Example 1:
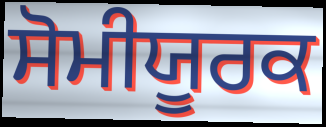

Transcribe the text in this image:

ਸੋਮੀਯੂਰਕ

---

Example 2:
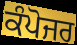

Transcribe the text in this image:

ਕੰਪੋਜਰ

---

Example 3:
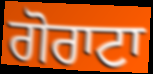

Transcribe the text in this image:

ਗੋਰਾਟਾ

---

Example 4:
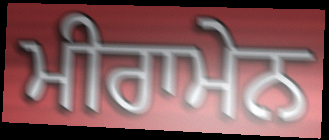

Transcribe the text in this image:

ਮੀਰਾਮੇਨ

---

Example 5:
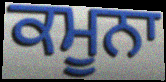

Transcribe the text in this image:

ਕਮੂਨਾ